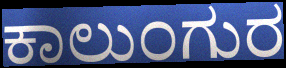
ಕಾಲುಂಗುರ